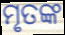
ମୃତଙ୍କ